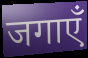
जगाएँ